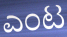
ಎಂಟ